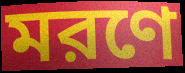
মরণে